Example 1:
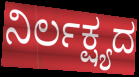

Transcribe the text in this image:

ನಿರ್ಲಕ್ಷ್ಯದ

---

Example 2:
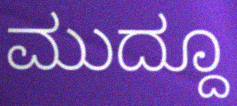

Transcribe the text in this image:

ಮುದ್ದೂ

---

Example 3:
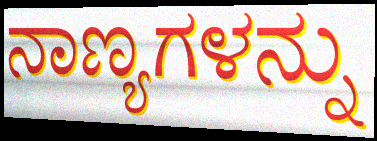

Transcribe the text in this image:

ನಾಣ್ಯಗಳನ್ನು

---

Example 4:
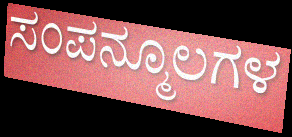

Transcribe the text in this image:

ಸಂಪನ್ಮೂಲಗಳ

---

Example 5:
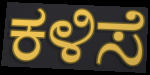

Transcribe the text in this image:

ಕಳಿಸೆ